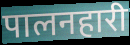
पालनहारी